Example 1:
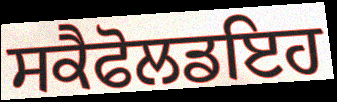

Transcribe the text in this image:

ਸਕੈਫੋਲਡਇਹ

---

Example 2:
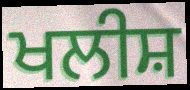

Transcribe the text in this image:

ਖਲੀਸ਼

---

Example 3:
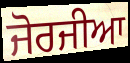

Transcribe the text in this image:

ਜੋਰਜੀਆ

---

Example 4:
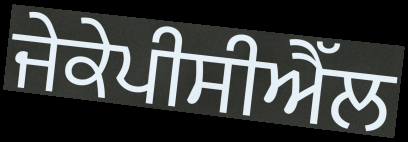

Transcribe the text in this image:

ਜੇਕੇਪੀਸੀਐੱਲ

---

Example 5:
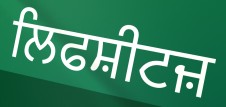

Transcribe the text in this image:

ਲਿਫਸ਼ੀਟਜ਼